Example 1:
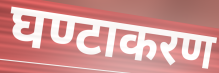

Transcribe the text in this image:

घण्टाकरण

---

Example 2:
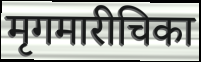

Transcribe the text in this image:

मृगमारीचिका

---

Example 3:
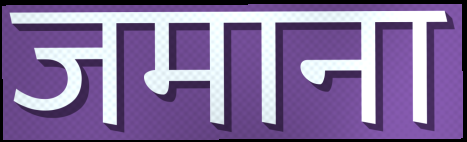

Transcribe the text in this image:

जमाना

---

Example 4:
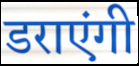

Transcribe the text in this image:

डराएंगी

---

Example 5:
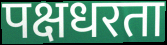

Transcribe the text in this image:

पक्षधरता